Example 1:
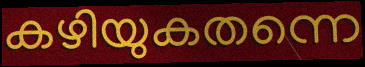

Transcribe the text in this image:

കഴിയുകതന്നെ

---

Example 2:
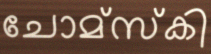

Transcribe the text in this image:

ചോമ്സ്കി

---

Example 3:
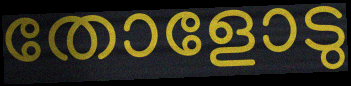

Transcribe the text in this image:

തോളോടു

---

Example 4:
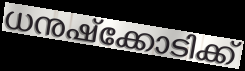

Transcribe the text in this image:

ധനുഷ്ക്കോടിക്ക്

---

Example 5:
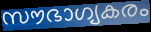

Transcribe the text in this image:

സൗഭാഗ്യകരം